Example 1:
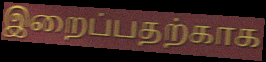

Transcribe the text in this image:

இறைப்பதற்காக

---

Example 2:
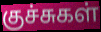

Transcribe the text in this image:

குச்சுகள்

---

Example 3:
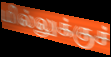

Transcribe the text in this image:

மில்லுக்குச்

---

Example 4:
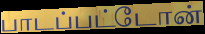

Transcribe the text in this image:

பாடப்பட்டோன்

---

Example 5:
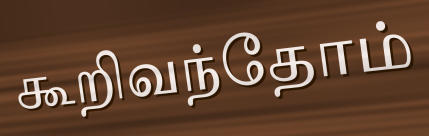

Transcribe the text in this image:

கூறிவந்தோம்